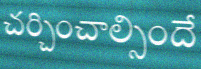
చర్చించాల్సిందే